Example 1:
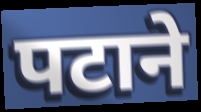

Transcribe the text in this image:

पटाने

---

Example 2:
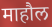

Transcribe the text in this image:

माहौल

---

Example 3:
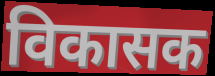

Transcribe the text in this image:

विकासक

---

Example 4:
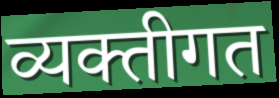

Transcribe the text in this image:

व्यक्तीगत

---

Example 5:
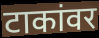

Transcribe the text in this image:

टाकांवर